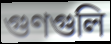
গুণগুলি